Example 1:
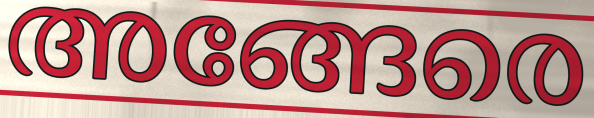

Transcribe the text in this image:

അങ്ങേരെ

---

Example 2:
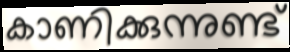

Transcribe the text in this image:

കാണിക്കുന്നുണ്ട്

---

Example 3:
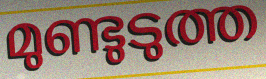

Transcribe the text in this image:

മുണ്ടുടുത്ത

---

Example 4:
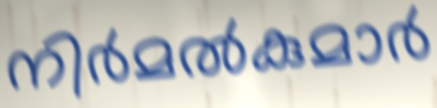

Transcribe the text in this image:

നിർമൽകുമാർ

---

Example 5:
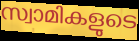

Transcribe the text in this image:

സ്വാമികളുടെ